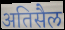
अतिसैल